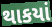
થાકયાં